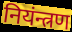
नियंन्त्रण